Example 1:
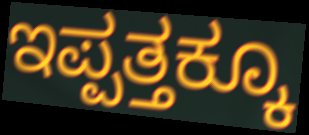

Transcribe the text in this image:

ಇಪ್ಪತ್ತಕ್ಕೂ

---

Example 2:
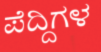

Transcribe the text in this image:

ಪೆದ್ದಿಗಳ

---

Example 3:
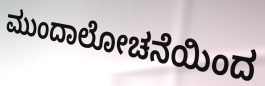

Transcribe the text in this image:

ಮುಂದಾಲೋಚನೆಯಿಂದ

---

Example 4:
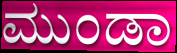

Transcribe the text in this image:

ಮುಂಡಾ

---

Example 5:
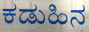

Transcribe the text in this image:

ಕಡುಹಿನ